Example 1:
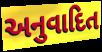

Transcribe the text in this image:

અનુવાદિત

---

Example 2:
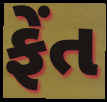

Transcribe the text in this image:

ફેંત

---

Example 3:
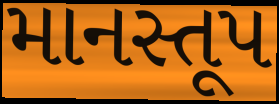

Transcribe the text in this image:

માનસ્તૂપ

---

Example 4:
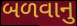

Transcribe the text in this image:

બળવાનુ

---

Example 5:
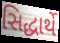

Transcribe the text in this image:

સિદ્ધાર્થે